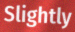
Slightly